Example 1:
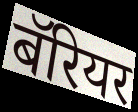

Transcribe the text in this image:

बॅरियर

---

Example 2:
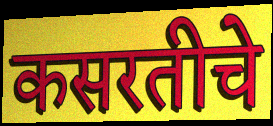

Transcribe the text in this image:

कसरतीचे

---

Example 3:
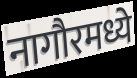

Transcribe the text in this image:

नागौरमध्ये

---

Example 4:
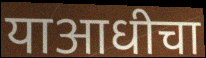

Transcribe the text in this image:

याआधीचा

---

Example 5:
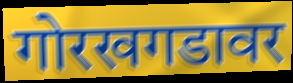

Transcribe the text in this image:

गोरखगडावर